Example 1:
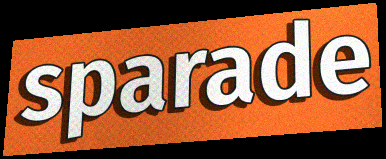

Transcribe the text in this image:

sparade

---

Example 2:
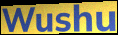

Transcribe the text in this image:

Wushu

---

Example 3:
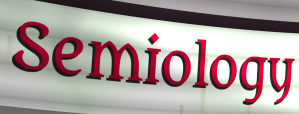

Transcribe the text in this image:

Semiology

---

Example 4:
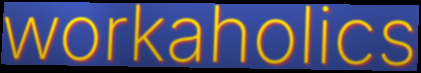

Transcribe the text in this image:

workaholics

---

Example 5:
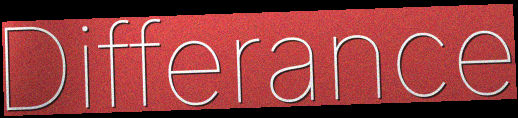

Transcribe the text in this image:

Differance